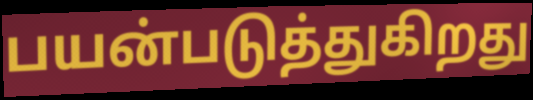
பயன்படுத்துகிறது